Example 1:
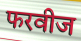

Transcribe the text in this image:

फरवीज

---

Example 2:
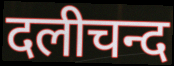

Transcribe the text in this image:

दलीचन्द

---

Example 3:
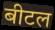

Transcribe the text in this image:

बीटल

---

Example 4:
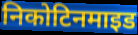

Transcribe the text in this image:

निकोटिनमाइड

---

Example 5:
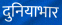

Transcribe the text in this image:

दुनियाभार